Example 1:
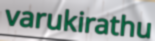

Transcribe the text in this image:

varukirathu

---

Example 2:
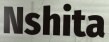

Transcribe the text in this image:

Nshita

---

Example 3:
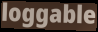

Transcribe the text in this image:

loggable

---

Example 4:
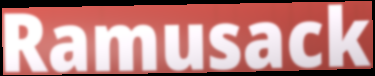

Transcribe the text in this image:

Ramusack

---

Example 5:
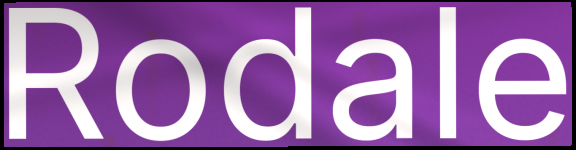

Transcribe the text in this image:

Rodale